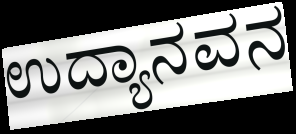
ಉದ್ಯಾನವನ